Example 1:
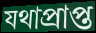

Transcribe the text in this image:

যথাপ্রাপ্ত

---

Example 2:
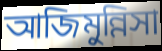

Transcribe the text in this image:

আজিমুন্নিসা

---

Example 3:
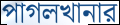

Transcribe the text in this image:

পাগলখানার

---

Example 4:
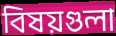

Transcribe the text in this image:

বিষয়গুলা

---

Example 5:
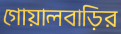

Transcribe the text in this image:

গোয়ালবাড়ির